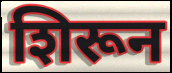
शिरून